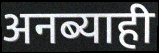
अनब्याही